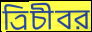
ত্রিচীবর